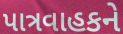
પાત્રવાહકને